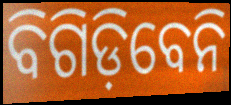
ବିଗିଡ଼ିବେନି